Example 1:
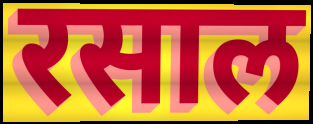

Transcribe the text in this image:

रसाल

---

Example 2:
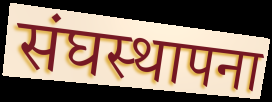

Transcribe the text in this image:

संघस्थापना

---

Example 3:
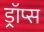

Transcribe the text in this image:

ड्रॉप्स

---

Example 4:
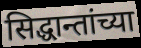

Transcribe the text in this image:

सिद्धान्तांच्या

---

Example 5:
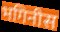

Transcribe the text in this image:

भगिनीस